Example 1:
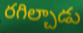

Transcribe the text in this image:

రగిల్చాడు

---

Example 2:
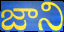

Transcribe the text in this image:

జాని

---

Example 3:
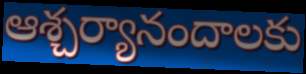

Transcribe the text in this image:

ఆశ్చర్యానందాలకు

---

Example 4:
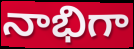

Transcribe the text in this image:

నాభిగా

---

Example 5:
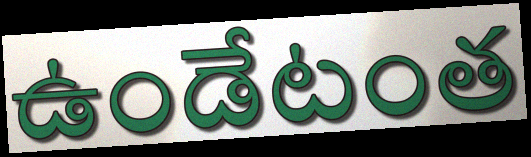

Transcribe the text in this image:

ఉండేటంత